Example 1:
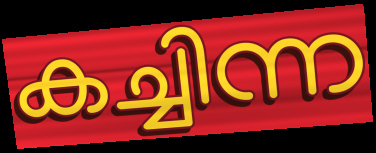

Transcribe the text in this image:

കച്ചിന്ന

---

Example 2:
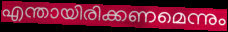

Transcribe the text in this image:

എന്തായിരിക്കണമെന്നും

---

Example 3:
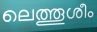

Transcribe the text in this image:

ലെത്തൂശീം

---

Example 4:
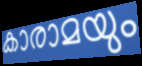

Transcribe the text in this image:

കാരാമയും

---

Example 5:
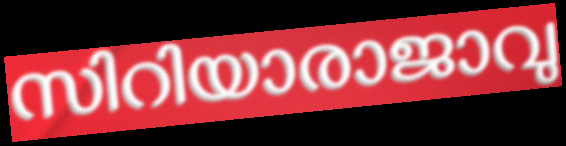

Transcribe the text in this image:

സിറിയാരാജാവു